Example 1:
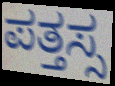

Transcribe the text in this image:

ಪತ್ತಸ್ಸ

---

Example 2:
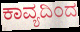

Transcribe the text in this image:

ಕಾವ್ಯದಿಂದ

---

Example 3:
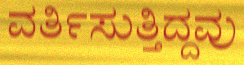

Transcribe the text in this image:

ವರ್ತಿಸುತ್ತಿದ್ದವು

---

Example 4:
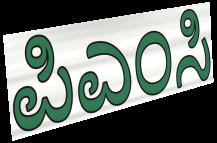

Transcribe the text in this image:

ಪಿಎಂಸಿ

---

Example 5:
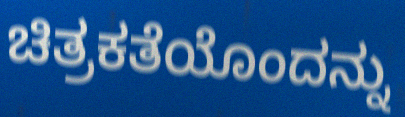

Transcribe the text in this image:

ಚಿತ್ರಕತೆಯೊಂದನ್ನು